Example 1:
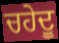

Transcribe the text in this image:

ਚਹੇਦੂ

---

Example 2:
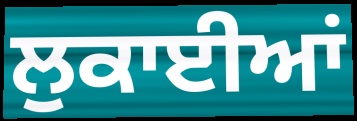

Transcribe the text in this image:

ਲੁਕਾਈਆਂ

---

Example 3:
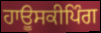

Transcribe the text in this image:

ਹਾਊਸਕੀਪਿੰਗ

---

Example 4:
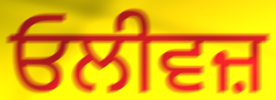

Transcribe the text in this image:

ਓਲੀਵਜ਼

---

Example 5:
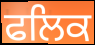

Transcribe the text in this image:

ਫਲਿਕ